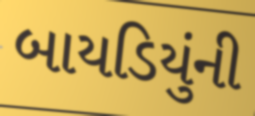
બાયડિયુંની